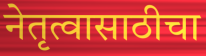
नेतृत्वासाठीचा